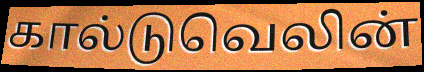
கால்டுவெலின்